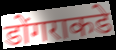
डोंगराकडे